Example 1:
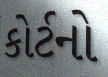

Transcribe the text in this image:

કોર્ટનો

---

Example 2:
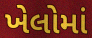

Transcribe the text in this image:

ખેલોમાં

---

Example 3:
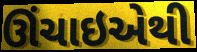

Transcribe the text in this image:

ઊંચાઇએથી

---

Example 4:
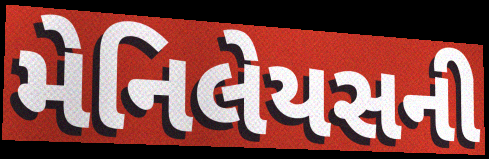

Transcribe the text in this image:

મેનિલેયસની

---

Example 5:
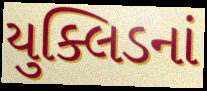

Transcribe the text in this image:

યુક્લિડનાં